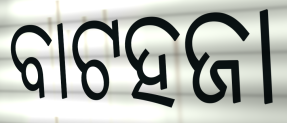
ବାଟହଜା